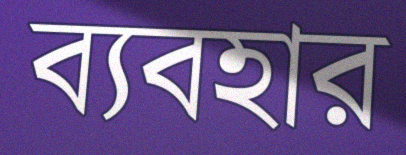
ব্যবহার